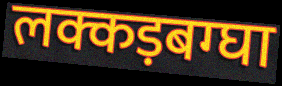
लक्कड़बग्घा